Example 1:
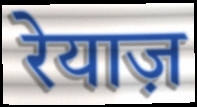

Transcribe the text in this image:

रेयाज़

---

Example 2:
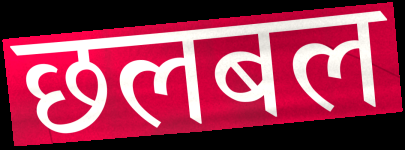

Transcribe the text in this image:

छलबल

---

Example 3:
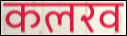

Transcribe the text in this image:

कलरव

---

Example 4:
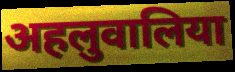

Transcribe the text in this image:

अहलुवालिया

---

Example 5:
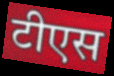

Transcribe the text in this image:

टीएस